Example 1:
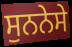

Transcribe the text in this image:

ਸੁਨਨੇਸੇ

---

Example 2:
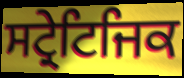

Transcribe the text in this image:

ਸਟ੍ਰੇਟਿਜਿਕ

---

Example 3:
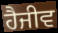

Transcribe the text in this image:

ਹੈਜੀਵ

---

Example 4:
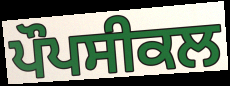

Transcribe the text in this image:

ਪੌਪਸੀਕਲ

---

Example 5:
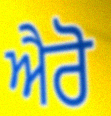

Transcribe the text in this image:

ਐਰੋ